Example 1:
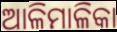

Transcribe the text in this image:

ଆଳିମାଳିକା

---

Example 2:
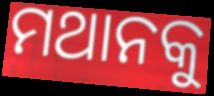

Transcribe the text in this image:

ମଥାନକୁ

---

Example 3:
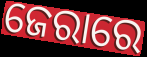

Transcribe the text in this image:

ଜେରାରେ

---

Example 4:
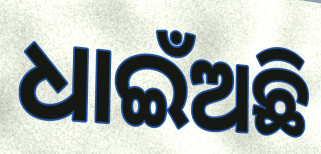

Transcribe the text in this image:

ଧାଇଁଅଛି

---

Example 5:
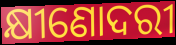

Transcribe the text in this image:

କ୍ଷୀଣୋଦରୀ